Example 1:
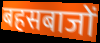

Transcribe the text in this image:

बहसबाजों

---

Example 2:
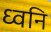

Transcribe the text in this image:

ध्‍वनि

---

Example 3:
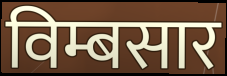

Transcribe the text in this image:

विम्बसार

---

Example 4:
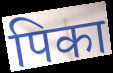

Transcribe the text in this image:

पिका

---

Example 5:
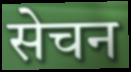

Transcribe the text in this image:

सेचन